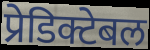
प्रेडिक्टेबल